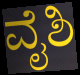
ವೈಶಿ